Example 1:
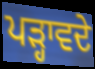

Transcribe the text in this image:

ਪੜ੍ਹਾਵਦੇ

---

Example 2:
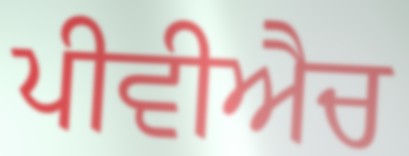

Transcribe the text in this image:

ਪੀਵੀਐਚ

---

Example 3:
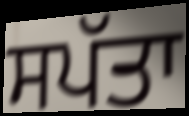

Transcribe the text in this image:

ਸਪੱਤਾ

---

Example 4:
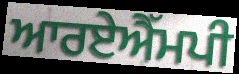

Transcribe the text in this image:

ਆਰਏਐੱਮਪੀ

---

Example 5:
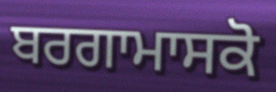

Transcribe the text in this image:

ਬਰਗਾਮਾਸਕੋ